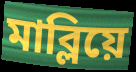
মাব্লিয়ে